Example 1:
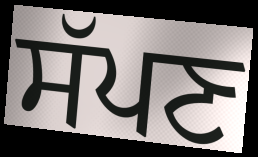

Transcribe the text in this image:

ਸੱਪਣ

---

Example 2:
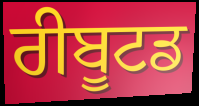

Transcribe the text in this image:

ਰੀਬੂਟਡ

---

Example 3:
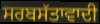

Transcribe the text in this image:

ਸਰਬਸੱਤਾਵਾਦੀ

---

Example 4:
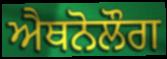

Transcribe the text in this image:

ਐਥਨੋਲੌਗ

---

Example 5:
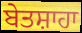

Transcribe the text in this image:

ਬੇਤਸ਼ਾਹਾ